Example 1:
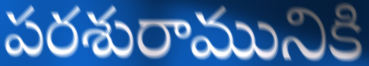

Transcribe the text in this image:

పరశురామునికి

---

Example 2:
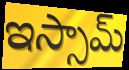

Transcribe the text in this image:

ఇస్సామ్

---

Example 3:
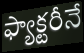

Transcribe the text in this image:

ఫ్యాక్టరీనే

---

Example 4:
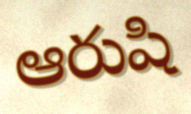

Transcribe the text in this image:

ఆరుషి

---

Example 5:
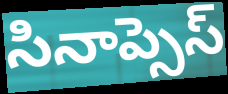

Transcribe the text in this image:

సినాప్సెస్